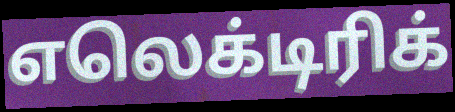
எலெக்டிரிக்